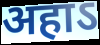
अहाऽ